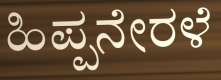
ಹಿಪ್ಪನೇರಳೆ